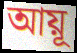
আয়ূ